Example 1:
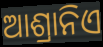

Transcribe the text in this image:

ଆଶ୍ରାନିଏ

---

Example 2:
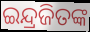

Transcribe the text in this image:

ଇନ୍ଦ୍ରଜିତଙ୍କ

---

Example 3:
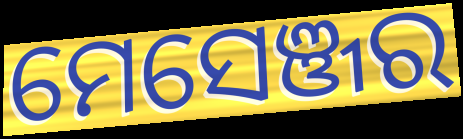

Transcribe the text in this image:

ମେସେଞ୍ଜର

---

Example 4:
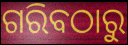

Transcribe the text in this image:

ଗରିବଠାରୁ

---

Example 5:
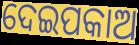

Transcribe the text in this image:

ଦେଇପକାଅ